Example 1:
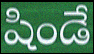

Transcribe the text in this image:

షిండే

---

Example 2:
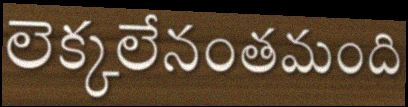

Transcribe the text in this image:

లెక్కలేనంతమంది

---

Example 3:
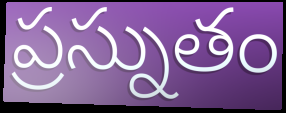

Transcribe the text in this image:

ప్రస్నుతం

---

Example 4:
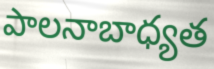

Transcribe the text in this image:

పాలనాబాధ్యత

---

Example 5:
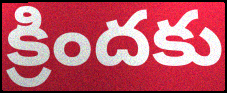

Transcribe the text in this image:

క్రిందకు